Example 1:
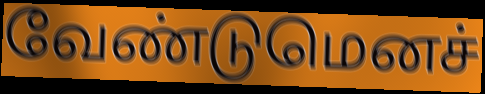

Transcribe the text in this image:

வேண்டுமெனச்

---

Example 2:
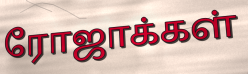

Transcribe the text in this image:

ரோஜாக்கள்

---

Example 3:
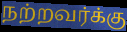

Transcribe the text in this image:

நற்றவர்க்கு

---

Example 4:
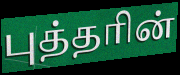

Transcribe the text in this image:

புத்தரின்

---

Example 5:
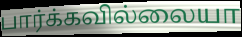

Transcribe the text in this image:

பார்க்கவில்லையா